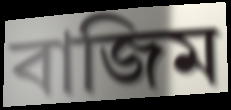
বাজিম